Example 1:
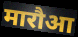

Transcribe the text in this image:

मारौआ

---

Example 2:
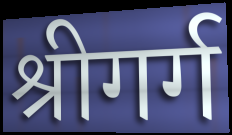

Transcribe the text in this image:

श्रीगर्ग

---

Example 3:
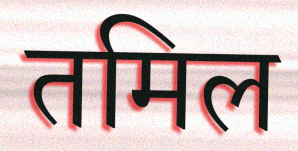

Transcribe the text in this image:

तमिल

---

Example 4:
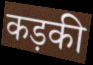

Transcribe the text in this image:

कड़की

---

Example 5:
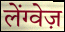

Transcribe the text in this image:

लेंग्वेज़